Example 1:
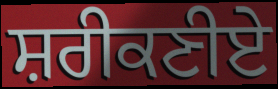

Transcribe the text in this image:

ਸ਼ਰੀਕਣੀਏ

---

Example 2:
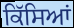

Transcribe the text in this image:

ਕਿੱਸਿਆਂ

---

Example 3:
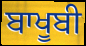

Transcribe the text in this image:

ਬਾਖੂਬੀ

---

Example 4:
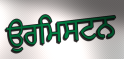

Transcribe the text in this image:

ਉਰਮਿਸਟਨ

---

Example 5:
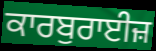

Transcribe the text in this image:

ਕਾਰਬੁਰਾਈਜ਼